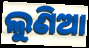
ଲୁଣିଆ